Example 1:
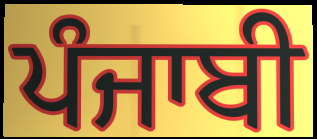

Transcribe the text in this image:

ਪੰਜਾਬੀ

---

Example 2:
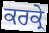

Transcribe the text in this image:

ਕਰਕ੍ਰੇ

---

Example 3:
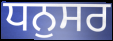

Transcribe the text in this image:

ਧਨੁਸਰ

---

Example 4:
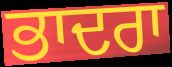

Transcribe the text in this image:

ਭਾਦਰਾ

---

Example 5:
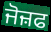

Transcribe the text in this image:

ਜੋਜ਼ਫ